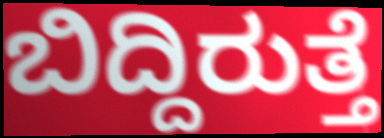
ಬಿದ್ದಿರುತ್ತೆ